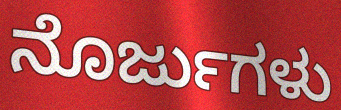
ನೊರ್ಜುಗಳು